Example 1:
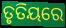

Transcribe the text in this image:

ତୃତିୟରେ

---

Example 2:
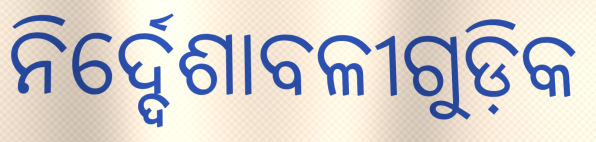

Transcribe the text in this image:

ନିର୍ଦ୍ଦେଶାବଳୀଗୁଡ଼ିକ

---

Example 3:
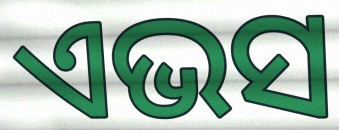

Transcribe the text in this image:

ଏଭସ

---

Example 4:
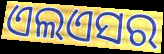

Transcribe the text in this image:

ଏଲଏସର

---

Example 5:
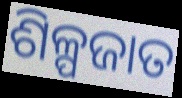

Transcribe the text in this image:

ଶିଳ୍ପଜାତ